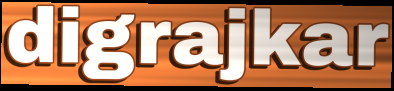
digrajkar